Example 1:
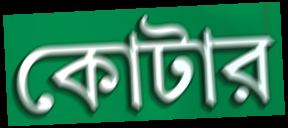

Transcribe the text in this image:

কোটার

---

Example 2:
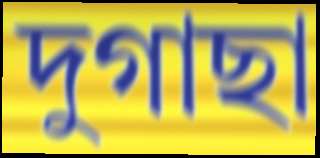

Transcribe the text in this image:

দুগাছা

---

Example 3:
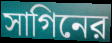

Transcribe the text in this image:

সাগিনের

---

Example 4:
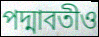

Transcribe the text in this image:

পদ্মাবতীও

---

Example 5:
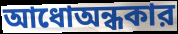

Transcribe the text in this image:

আধোঅন্ধকার